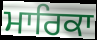
ਮਾਰਿਕਾ